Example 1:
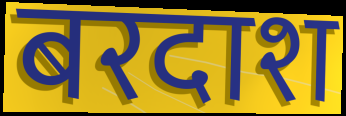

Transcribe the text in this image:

बरदाश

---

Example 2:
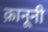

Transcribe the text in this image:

क़ानूनी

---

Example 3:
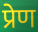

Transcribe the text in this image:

प्रेण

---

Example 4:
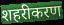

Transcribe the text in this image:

शहरीकरण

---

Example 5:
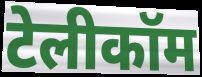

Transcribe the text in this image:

टेलीकॉम